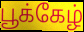
பூக்கேழ்